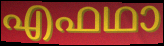
എഫഥാ